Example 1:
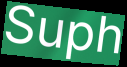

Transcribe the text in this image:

Suph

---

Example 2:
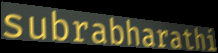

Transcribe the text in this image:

subrabharathi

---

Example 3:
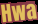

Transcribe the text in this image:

Hwa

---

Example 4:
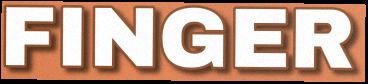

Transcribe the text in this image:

FINGER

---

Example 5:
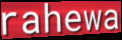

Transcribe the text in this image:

rahewa